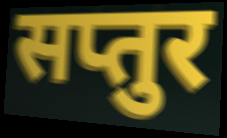
सप्तुर